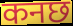
कनछ